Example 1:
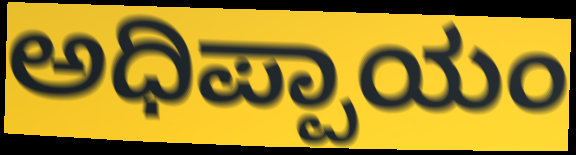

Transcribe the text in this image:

ಅಧಿಪ್ಪಾಯಂ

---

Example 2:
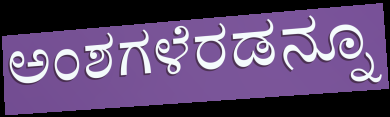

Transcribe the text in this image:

ಅಂಶಗಳೆರಡನ್ನೂ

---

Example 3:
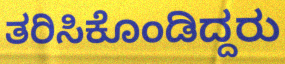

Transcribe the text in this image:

ತರಿಸಿಕೊಂಡಿದ್ದರು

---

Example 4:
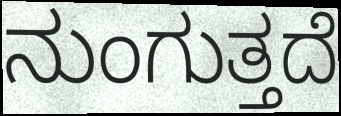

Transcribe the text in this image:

ನುಂಗುತ್ತದೆ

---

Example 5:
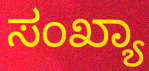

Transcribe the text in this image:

ಸಂಖ್ಯಾ